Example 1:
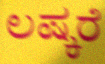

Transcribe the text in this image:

ಲಷ್ಕರೆ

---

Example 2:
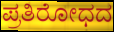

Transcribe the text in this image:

ಪ್ರತಿರೋಧದ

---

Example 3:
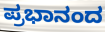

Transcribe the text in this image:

ಪ್ರಭಾನಂದ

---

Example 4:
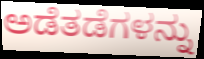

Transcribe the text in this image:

ಅಡೆತಡೆಗಳನ್ನು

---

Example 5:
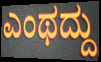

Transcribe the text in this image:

ಎಂಥದ್ದು